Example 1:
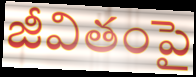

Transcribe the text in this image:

జీవితంపై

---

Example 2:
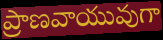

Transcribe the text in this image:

ప్రాణవాయువుగా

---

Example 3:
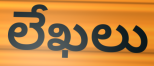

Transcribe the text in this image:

లేఖలు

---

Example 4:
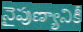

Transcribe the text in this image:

నైపుణ్యానికీ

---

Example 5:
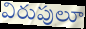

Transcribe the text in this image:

విరుపులూ